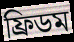
ফ্ৰিডম